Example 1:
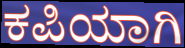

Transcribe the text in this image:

ಕಪಿಯಾಗಿ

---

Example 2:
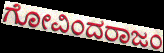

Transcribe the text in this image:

ಗೋವಿಂದರಾಜಂ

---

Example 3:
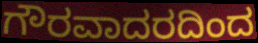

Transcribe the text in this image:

ಗೌರವಾದರದಿಂದ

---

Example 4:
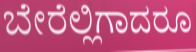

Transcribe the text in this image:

ಬೇರೆಲ್ಲಿಗಾದರೂ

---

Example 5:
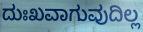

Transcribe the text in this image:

ದುಃಖವಾಗುವುದಿಲ್ಲ